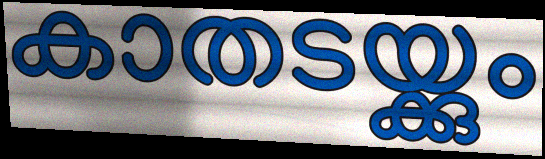
കാതടയ്ക്കും